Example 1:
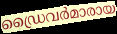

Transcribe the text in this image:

ഡ്രൈവർമാരായ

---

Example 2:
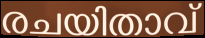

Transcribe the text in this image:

രചയിതാവ്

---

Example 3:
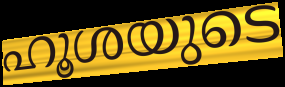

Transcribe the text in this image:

ഹൂശയുടെ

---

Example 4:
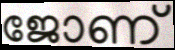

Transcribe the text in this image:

ജോണ്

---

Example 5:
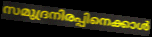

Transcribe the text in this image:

സമുദ്രനിരപ്പിനെക്കാൾ